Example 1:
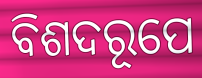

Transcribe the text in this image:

ବିଶଦରୂପେ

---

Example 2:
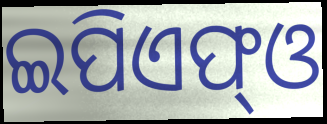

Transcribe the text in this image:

ଇପିଏଫ୍ଓ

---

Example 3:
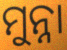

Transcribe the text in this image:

ମୁନ୍ନା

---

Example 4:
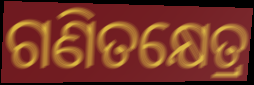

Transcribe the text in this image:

ଗଣିତକ୍ଷେତ୍ର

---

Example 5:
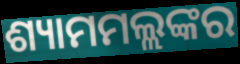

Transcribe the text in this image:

ଶ୍ୟାମମଲ୍ଲଙ୍କର